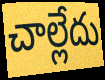
చాల్లేదు